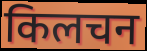
किलचन